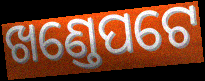
ଖଣ୍ଡେପଟେ